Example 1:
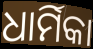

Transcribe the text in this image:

ଧାର୍ମିକା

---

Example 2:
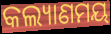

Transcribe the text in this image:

କଲ୍ୟାଣମୟ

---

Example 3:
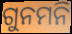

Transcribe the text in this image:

ଗୁନମନି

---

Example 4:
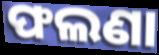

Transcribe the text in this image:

ଫଲଣା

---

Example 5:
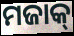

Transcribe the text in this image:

ମଜାକ୍